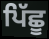
ਪਿੱਛੂ